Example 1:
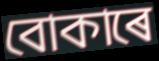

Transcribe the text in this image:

বোকাৰে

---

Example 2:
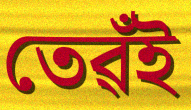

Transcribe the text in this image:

তেৱঁই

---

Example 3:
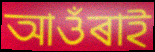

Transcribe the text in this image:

আওঁৰাই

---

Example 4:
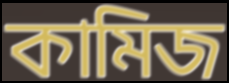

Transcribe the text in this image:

কামিজ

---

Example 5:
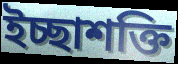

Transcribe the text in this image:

ইচ্ছাশক্তি